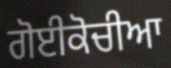
ਗੋਈਕੋਚੀਆ